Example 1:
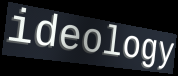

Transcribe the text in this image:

ideology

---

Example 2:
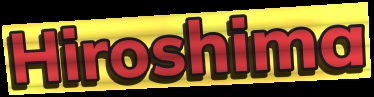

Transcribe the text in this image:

Hiroshima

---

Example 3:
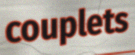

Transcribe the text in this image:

couplets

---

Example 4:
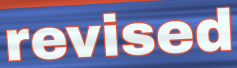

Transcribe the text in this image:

revised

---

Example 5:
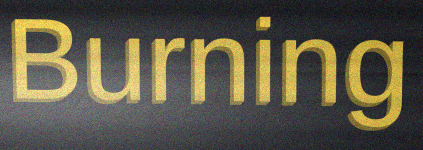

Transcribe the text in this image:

Burning